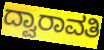
ದ್ವಾರಾವತಿ